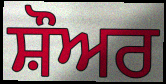
ਸ਼ੌਅਰ